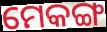
ମେକଙ୍ଗ